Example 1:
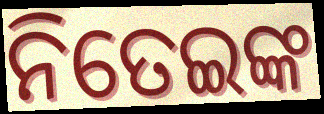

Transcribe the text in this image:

ନିତେଇଙ୍କ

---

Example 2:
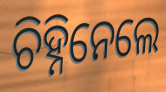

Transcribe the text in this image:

ଚିହ୍ନିନେଲେ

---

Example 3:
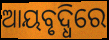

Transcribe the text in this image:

ଆୟବୃଦ୍ଧିରେ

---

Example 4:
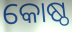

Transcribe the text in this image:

କୋଷ୍ଠ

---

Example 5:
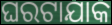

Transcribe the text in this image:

ଘରଟାଯାକ